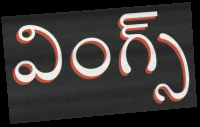
వింగ్స్